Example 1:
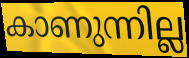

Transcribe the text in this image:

കാണുന്നില്ല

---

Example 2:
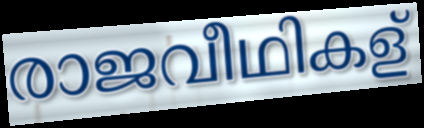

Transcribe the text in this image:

രാജവീഥികള്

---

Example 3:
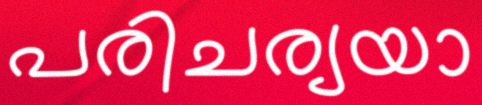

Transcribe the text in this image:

പരിചര്യയാ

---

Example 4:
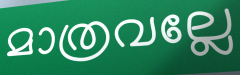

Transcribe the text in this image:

മാത്രവല്ലേ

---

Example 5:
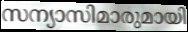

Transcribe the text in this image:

സന്യാസിമാരുമായി